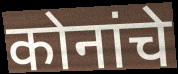
कोनांचे